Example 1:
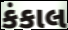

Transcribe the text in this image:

કંકાલ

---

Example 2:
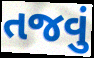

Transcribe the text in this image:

તજવું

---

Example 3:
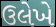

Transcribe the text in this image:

ઉલેખે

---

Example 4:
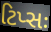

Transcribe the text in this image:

ટિપ્સઃ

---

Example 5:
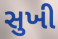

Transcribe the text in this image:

સુખી